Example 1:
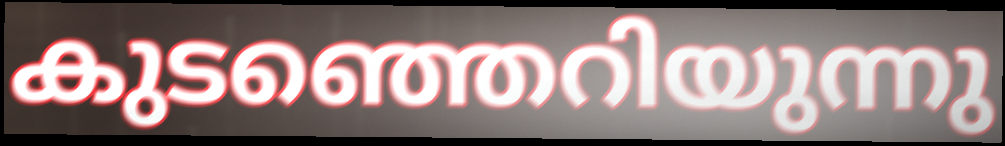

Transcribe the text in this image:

കുടഞ്ഞെറിയുന്നു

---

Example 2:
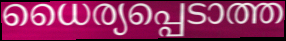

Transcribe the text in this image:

ധൈര്യപ്പെടാത്ത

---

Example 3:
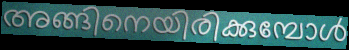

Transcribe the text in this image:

അങ്ങിനെയിരിക്കുമ്പോൾ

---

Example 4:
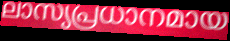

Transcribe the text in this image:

ലാസ്യപ്രധാനമായ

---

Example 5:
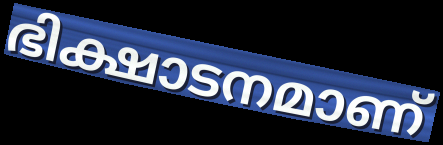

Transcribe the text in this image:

ഭിക്ഷാടനമാണ്